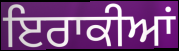
ਇਰਾਕੀਆਂ